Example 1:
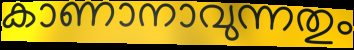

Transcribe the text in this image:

കാണാനാവുന്നതും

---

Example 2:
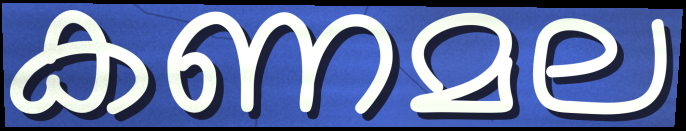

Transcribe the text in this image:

കണമല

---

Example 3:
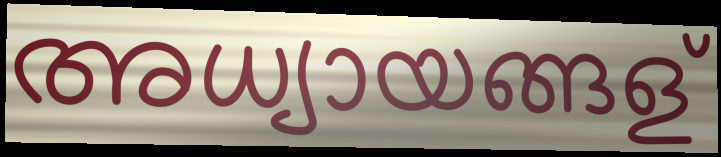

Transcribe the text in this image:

അധ്യായങ്ങള്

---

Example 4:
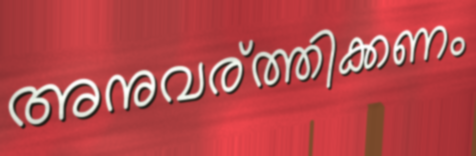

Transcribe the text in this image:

അനുവര്ത്തിക്കണം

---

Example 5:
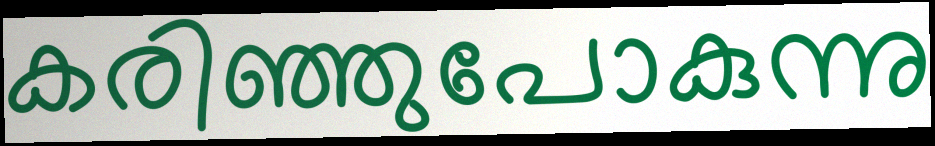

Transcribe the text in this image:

കരിഞ്ഞുപോകുന്നു